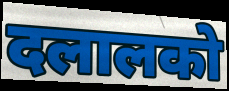
दलालको